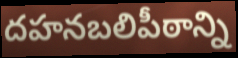
దహనబలిపీఠాన్ని